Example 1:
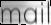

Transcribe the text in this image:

mail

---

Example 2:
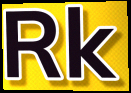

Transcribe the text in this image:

Rk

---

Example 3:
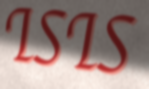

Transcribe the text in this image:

ISIS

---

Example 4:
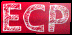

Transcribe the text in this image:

ECP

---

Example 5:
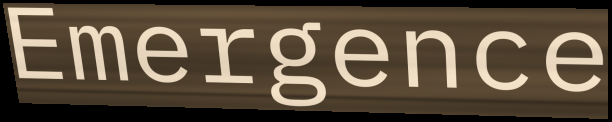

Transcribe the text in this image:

Emergence